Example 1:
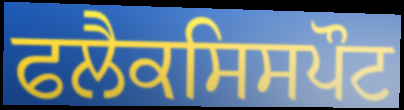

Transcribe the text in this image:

ਫਲੈਕਸਿਸਪੌਟ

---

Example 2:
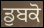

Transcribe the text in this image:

ਡੁਬਕੋ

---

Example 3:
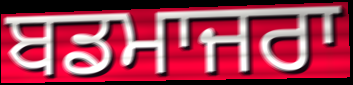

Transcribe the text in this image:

ਬਡਮਾਜਰਾ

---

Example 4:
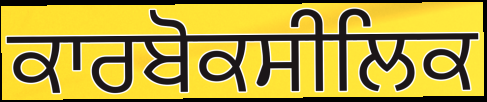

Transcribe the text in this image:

ਕਾਰਬੋਕਸੀਲਿਕ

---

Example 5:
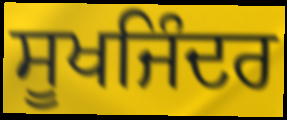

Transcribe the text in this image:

ਸੂਖਜਿੰਦਰ